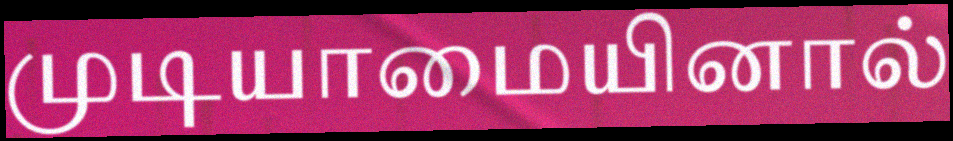
முடியாமையினால்